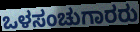
ಒಳಸಂಚುಗಾರರು